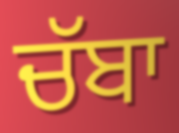
ਚੱਬਾ